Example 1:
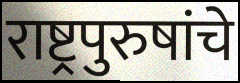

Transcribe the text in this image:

राष्ट्रपुरुषांचे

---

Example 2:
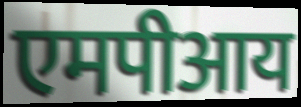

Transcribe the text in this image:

एमपीआय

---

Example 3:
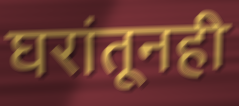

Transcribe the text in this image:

घरांतूनही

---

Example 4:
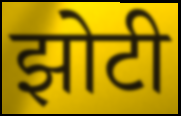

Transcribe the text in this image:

झोटी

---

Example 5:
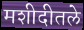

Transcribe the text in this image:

मशीदीतले